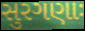
સુરગણાઃ